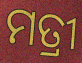
ମତ୍ରୀ